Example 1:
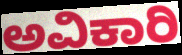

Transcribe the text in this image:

ಅವಿಕಾರಿ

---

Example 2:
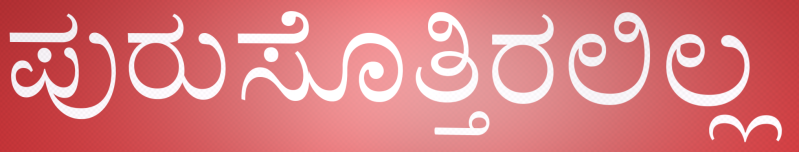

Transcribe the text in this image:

ಪುರುಸೊತ್ತಿರಲಿಲ್ಲ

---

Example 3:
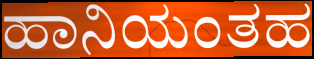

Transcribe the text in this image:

ಹಾನಿಯಂತಹ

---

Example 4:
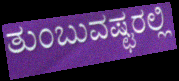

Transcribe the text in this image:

ತುಂಬುವಷ್ಟರಲ್ಲಿ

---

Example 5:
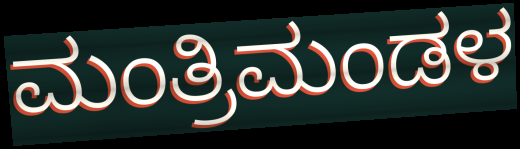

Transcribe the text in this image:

ಮಂತ್ರಿಮಂಡಳ